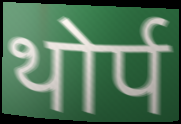
थोर्प